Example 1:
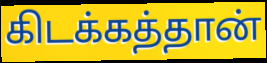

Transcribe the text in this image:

கிடக்கத்தான்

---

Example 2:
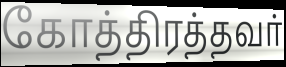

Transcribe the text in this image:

கோத்திரத்தவர்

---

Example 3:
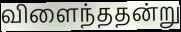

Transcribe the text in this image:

விளைந்ததன்று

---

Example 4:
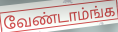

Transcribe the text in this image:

வேண்டாம்ங்க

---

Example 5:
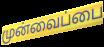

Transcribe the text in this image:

முன்வைப்பை